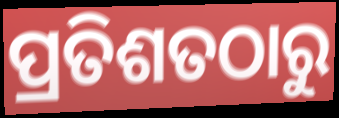
ପ୍ରତିଶତଠାରୁ